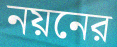
নয়নের